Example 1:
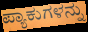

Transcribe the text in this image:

ಪ್ಯಾಕುಗಳನ್ನು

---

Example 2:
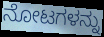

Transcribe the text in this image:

ನೋಟಗಳನ್ನು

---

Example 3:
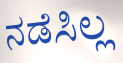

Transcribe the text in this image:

ನಡೆಸಿಲ್ಲ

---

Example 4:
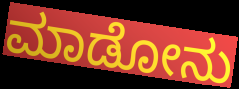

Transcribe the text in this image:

ಮಾಡೋನು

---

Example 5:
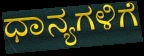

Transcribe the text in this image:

ಧಾನ್ಯಗಳಿಗೆ